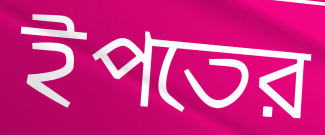
ইপতের